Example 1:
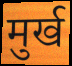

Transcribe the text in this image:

मुर्ख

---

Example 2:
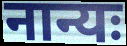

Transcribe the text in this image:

नान्यः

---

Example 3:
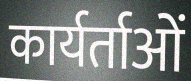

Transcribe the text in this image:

कार्यर्ताओं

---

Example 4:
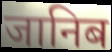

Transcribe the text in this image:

जानिब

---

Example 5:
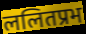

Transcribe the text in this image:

ललितप्रभ